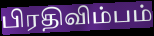
பிரதிவிம்பம்